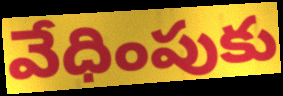
వేధింపుకు